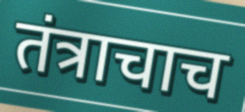
तंत्राचाच